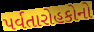
પર્વતારોહકોનો